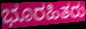
ಭೂರಹಿತರು